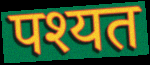
पश्यत